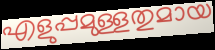
എളുപ്പമുള്ളതുമായ